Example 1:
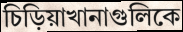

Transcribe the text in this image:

চিড়িয়াখানাগুলিকে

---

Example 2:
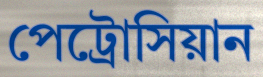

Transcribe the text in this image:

পেট্রোসিয়ান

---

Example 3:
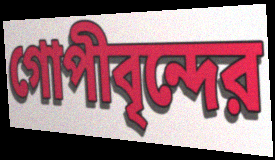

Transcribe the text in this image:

গোপীবৃন্দের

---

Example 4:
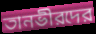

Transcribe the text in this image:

তানভীরদের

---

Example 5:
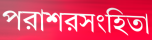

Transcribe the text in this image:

পরাশরসংহিতা